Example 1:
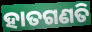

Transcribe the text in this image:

ହାତଗଣତି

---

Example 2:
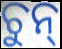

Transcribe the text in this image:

ଚୁନ୍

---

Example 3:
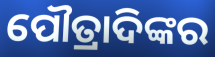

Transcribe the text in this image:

ପୌତ୍ରାଦିଙ୍କର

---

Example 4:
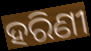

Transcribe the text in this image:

ହରିଣୀ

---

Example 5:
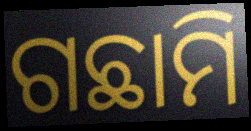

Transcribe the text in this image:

ଗଛାମି